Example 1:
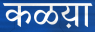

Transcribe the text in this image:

कळय़ा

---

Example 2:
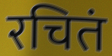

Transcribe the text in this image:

रचितं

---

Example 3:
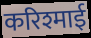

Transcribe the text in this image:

करिश्माई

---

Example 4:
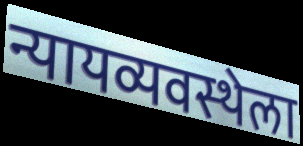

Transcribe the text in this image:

न्यायव्यवस्थेला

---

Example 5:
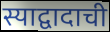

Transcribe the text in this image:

स्याद्वादाची